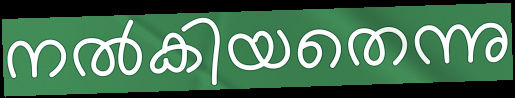
നൽകിയതെന്നു